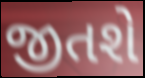
જીતશે